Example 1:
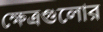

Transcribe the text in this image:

ক্ষেত্রগুলোর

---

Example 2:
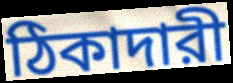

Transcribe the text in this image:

ঠিকাদারী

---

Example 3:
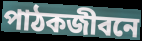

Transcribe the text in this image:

পাঠকজীবনে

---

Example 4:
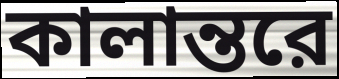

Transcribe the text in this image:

কালান্তরে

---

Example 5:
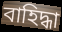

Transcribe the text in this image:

বাহিদ্ধা